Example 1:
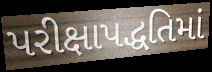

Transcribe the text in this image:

પરીક્ષાપદ્ધતિમાં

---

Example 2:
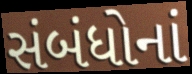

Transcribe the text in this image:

સંબંધોનાં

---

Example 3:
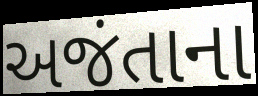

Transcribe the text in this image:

અજંતાના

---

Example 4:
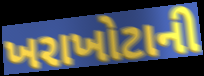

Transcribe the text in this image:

ખરાખોટાની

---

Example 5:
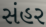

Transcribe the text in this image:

સંહર